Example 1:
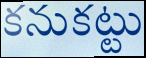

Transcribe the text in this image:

కనుకట్టు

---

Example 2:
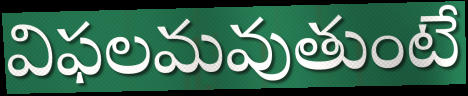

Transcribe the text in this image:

విఫలమవుతుంటే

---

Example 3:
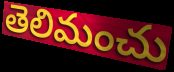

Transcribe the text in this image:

తెలిమంచు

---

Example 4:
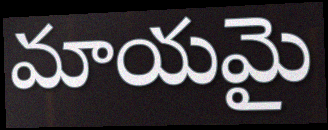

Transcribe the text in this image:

మాయమై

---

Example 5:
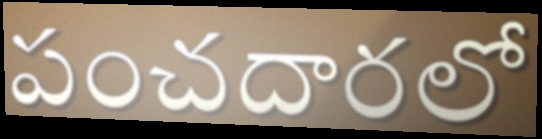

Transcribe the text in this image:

పంచదారలో